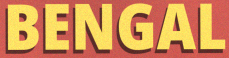
BENGAL